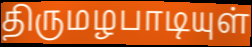
திருமழபாடியுள்